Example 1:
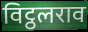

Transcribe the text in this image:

विट्ठलराव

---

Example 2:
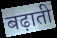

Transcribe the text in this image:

बढ़ाती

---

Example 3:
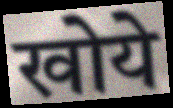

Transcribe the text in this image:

खोये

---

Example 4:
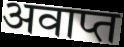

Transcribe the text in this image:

अवाप्त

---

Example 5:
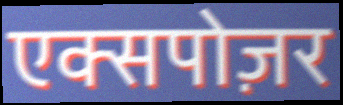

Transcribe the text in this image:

एक्सपोज़र